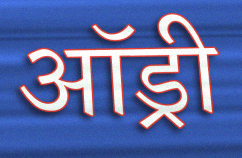
ऑड्री